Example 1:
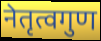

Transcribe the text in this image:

नेतृत्वगुण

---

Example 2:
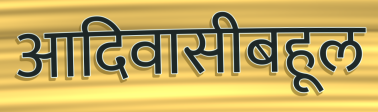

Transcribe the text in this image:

आदिवासीबहूल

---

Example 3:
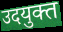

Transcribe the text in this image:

उदयुक्त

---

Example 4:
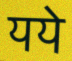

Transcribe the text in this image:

यये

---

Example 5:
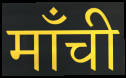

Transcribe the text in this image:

माँची